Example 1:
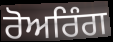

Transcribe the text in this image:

ਰੋਅਰਿੰਗ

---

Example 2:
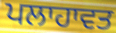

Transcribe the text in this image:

ਪਲਾਹਾਵਤ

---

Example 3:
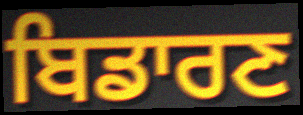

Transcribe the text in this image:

ਬਿਡਾਰਣ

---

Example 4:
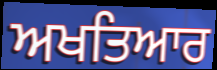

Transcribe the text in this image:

ਅਖਤਿਆਰ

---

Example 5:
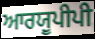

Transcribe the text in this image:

ਆਰਯੂਪੀਪੀ